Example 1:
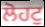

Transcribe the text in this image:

ਲੋਹਟੁ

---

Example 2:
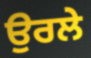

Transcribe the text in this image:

ਉਰਲੇ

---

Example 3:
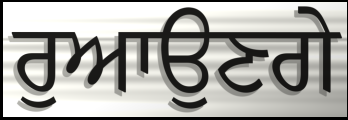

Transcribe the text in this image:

ਰੁਆਉਣਗੇ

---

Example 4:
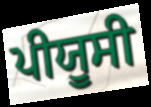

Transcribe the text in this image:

ਪੀਯੂਸੀ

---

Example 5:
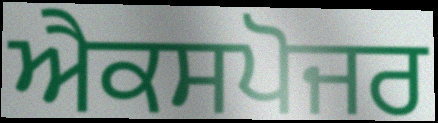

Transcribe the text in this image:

ਐਕਸਪੋਜਰ